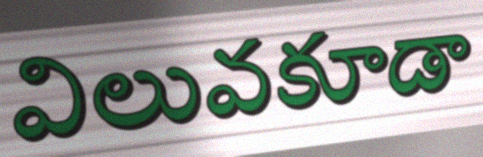
విలువకూడా